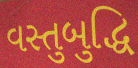
વસ્તુબુદ્ધિ